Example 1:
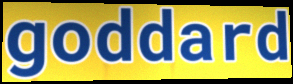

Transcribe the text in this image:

goddard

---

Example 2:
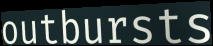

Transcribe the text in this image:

outbursts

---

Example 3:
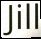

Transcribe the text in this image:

Jill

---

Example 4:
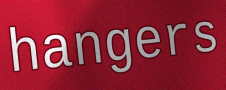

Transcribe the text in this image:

hangers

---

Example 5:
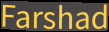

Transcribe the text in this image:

Farshad